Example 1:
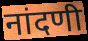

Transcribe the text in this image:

नांदणी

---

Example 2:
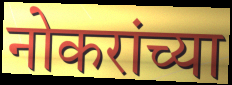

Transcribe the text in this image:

नोकरांच्या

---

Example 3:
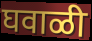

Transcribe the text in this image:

घवाळी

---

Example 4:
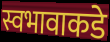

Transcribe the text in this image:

स्वभावाकडे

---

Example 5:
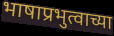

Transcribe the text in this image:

भाषाप्रभुत्वाच्या